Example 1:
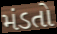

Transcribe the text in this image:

મંડતો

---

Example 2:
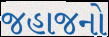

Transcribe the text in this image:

જહાજનો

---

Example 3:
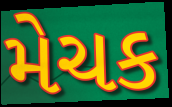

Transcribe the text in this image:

મેચક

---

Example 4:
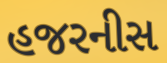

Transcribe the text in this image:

હજરનીસ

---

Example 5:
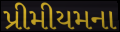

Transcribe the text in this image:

પ્રીમીયમના